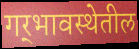
गर्भावस्थेतील